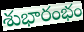
శుభారంభం